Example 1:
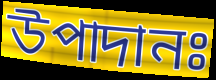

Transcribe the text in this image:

উপাদানঃ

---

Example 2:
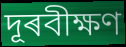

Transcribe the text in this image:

দূৰবীক্ষণ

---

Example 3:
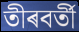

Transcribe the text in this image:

তীৰবৰ্তী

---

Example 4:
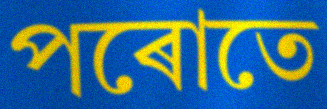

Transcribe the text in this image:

পৰোতে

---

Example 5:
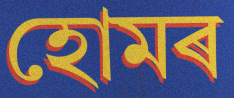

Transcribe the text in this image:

হোমৰ